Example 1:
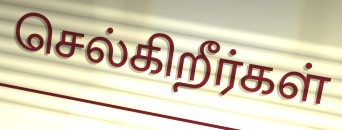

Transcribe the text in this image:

செல்கிறீர்கள்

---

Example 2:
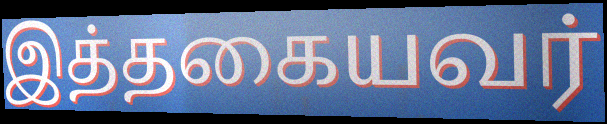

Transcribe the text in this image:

இத்தகையவர்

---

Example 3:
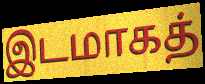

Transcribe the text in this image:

இடமாகத்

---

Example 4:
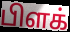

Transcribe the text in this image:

பிளக்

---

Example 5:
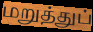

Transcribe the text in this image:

மறுத்துப்